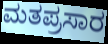
ಮತಪ್ರಸಾರ